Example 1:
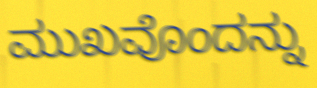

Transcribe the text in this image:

ಮುಖವೊಂದನ್ನು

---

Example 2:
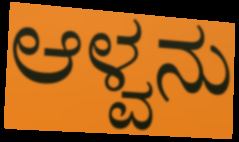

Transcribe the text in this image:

ಆಳ್ವನು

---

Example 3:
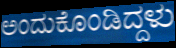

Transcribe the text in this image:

ಅಂದುಕೊಂಡಿದ್ದಳು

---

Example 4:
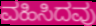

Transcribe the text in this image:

ವಹಿಸಿದವು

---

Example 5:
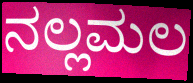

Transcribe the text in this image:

ನಲ್ಲಮಲ